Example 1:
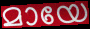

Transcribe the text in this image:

മായേ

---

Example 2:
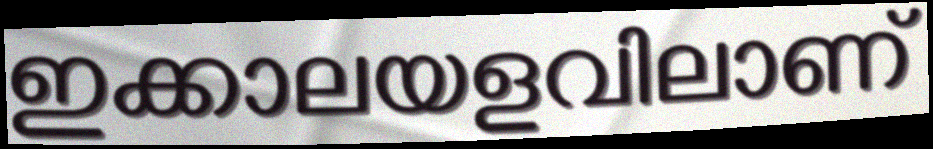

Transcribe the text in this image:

ഇക്കാലയളവിലാണ്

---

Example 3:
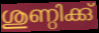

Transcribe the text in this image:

ശുണ്ഠിക്കു്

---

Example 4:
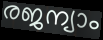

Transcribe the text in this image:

രജന്യാം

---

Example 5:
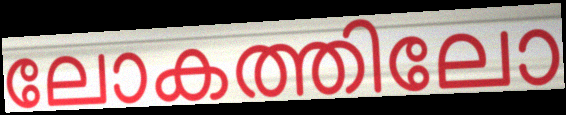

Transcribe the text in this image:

ലോകത്തിലോ